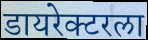
डायरेक्टरला